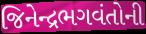
જિનેન્દ્રભગવંતોની